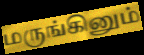
மருங்கினும்